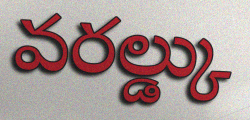
వరల్డ్కు